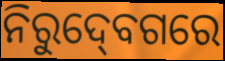
ନିରୁଦ୍‍ବେଗରେ